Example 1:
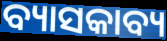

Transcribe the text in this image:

ବ୍ୟାସକାବ୍ୟ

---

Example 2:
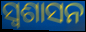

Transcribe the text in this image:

ସ୍ବଶାସନ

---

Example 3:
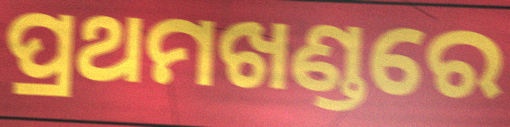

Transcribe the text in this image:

ପ୍ରଥମଖଣ୍ଡରେ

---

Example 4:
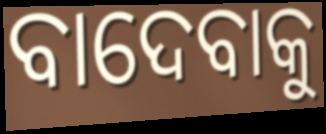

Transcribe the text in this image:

ବାଦେବାକୁ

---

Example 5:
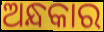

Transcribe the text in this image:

ଅନ୍ଧକାର